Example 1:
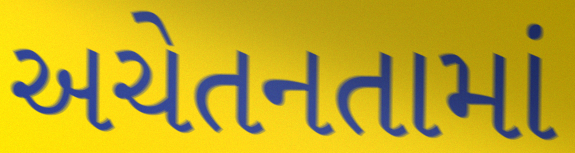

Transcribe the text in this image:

અચેતનતામાં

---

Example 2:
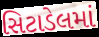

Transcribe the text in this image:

સિટાડેલમાં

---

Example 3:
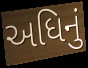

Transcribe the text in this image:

અધિનું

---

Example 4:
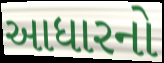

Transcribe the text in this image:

આધારનો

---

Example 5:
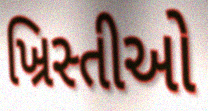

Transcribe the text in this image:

ખ્રિસ્તીઓ